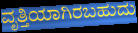
ವೃತ್ತಿಯಾಗಿರಬಹುದು